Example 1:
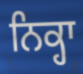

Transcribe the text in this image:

ਨਿਕ੍ਹਾ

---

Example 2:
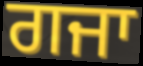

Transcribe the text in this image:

ਗਜਾ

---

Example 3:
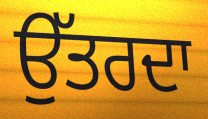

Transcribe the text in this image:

ਉੱਤਰਦਾ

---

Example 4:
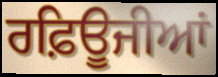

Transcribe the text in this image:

ਰਫ਼ਿਊਜੀਆਂ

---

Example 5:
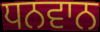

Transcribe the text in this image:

ਧਨਵਾਨ